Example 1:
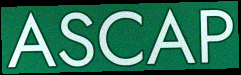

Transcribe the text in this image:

ASCAP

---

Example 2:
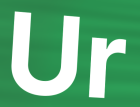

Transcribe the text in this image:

Ur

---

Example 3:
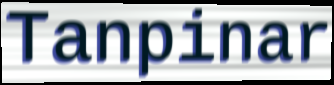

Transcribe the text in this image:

Tanpinar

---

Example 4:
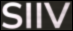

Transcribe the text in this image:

SIIV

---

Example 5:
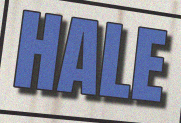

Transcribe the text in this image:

HALE